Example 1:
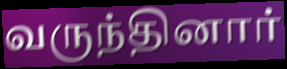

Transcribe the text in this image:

வருந்தினார்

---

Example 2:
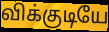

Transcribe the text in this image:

விக்குடியே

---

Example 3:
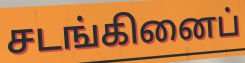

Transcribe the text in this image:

சடங்கினைப்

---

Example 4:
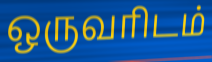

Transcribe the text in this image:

ஒருவரிடம்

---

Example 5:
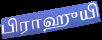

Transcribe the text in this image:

பிராஹுயி